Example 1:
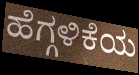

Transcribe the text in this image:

ಹೆಗ್ಗಳಿಕೆಯ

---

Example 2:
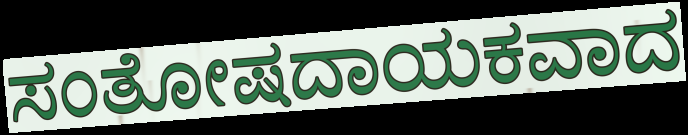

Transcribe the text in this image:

ಸಂತೋಷದಾಯಕವಾದ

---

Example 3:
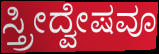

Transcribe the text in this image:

ಸ್ತ್ರೀದ್ವೇಷವೂ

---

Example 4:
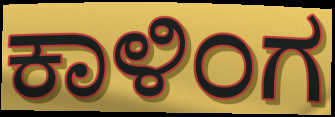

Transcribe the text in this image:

ಕಾಳಿಂಗ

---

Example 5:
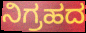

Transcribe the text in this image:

ನಿಗ್ರಹದ